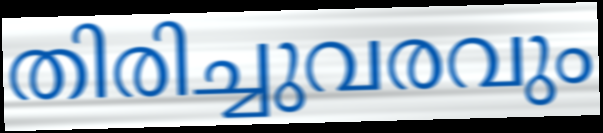
തിരിച്ചുവരവും